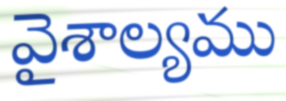
వైశాల్యము